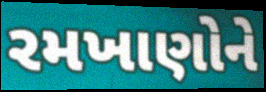
રમખાણોને